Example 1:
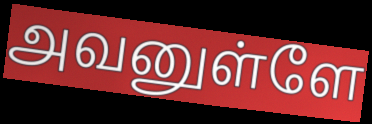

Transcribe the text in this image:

அவனுள்ளே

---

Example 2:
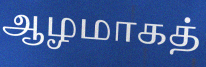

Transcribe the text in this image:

ஆழமாகத்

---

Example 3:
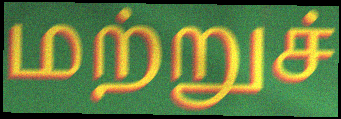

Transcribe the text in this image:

மற்றுச்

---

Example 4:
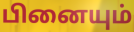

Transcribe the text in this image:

பினையும்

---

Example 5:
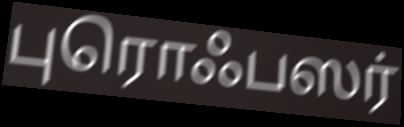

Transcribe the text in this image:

புரொஃபஸர்